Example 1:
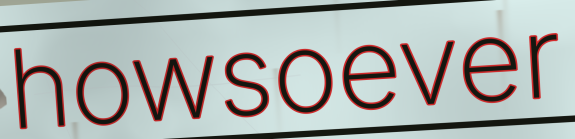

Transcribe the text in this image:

howsoever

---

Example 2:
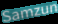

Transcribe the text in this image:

Samzun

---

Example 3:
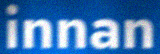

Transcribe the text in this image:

innan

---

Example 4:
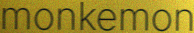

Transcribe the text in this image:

monkemon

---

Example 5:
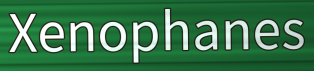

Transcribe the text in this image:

Xenophanes